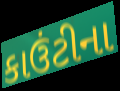
કાઉંટીના